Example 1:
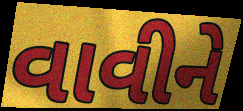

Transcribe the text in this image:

વાવીને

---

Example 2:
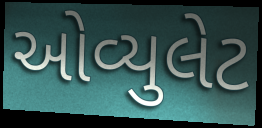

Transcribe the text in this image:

ઓવ્યુલેટ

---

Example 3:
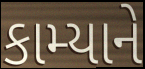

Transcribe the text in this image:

કામ્યાને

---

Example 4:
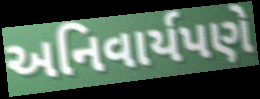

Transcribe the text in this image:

અનિવાર્યપણે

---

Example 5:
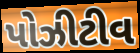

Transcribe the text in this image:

પોઝીટીવ